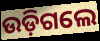
ଉଡ଼ିଗଲେ